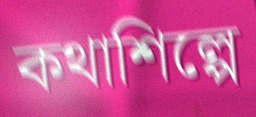
কথাশিল্পে